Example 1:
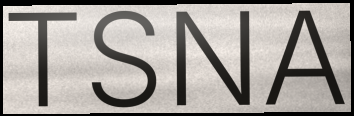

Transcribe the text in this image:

TSNA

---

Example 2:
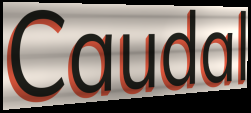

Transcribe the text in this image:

Caudal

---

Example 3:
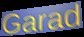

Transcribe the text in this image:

Garad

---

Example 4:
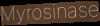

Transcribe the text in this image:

Myrosinase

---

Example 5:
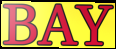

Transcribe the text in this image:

BAY